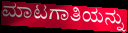
ಮಾಟಗಾತಿಯನ್ನು